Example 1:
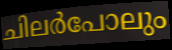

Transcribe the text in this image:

ചിലർപോലും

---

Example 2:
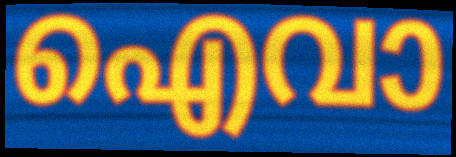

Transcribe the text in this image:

ഐവാ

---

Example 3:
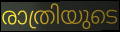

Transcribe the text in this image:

രാത്രിയുടെ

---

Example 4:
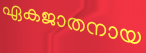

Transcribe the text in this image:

ഏകജാതനായ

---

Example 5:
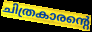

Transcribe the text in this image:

ചിത്രകാരന്റെ